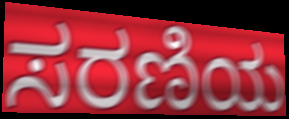
ಸರಣಿಯ